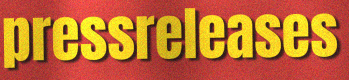
pressreleases